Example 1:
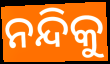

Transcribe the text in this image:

ନନ୍ଦିକୁ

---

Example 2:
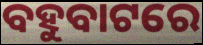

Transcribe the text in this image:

ବହୁବାଟରେ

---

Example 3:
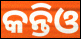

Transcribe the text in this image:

କନ୍ତିଓ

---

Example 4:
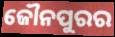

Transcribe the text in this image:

ଜୌନପୁରର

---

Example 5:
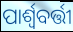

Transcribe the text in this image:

ପାର୍ଶ୍ୱବର୍ତ୍ତୀ